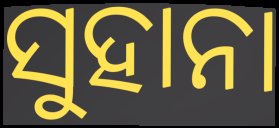
ସୁହାନା